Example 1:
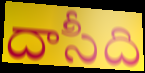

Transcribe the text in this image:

దాసీది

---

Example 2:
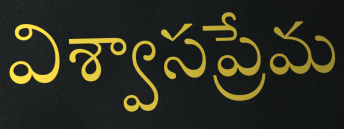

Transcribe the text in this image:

విశ్వాసప్రేమ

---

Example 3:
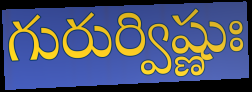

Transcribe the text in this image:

గురుర్విష్ణుః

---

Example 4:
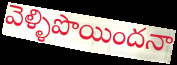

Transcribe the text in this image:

వెళ్ళిపొయిందనా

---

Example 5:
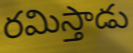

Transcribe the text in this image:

రమిస్తాడు